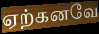
ஏற்கனவே